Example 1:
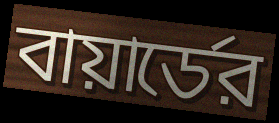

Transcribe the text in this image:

বায়ার্ডের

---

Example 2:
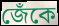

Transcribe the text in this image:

জেঁকে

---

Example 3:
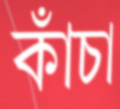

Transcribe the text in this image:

কাঁচা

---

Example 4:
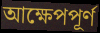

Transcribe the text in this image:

আক্ষেপপূর্ণ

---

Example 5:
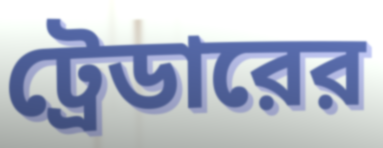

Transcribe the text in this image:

ট্রেডারের